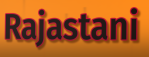
Rajastani